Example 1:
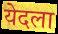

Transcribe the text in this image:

येदला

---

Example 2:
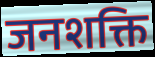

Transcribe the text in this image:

जनशक्ति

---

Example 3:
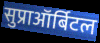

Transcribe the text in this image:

सुप्राऑर्बिटल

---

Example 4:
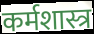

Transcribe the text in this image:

कर्मशास्त्र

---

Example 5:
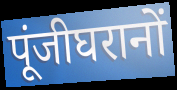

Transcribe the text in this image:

पूंजीघरानों